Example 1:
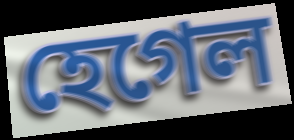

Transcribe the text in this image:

হেগেল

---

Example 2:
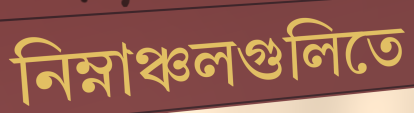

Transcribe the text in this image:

নিম্নাঞ্চলগুলিতে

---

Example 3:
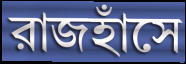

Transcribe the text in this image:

রাজহাঁসে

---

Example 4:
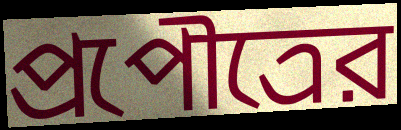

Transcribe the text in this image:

প্রপৌত্রের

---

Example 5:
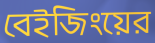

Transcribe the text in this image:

বেইজিংয়ের